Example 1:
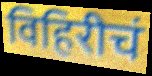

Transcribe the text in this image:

विहिरीचं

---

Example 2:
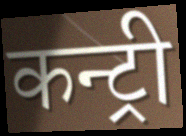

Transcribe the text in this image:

कन्ट्री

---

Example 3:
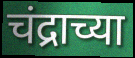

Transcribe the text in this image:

चंद्राच्या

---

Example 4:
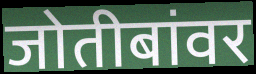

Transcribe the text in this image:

जोतीबांवर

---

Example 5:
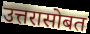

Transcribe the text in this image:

उत्तरासोबत